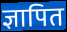
ज्ञापित